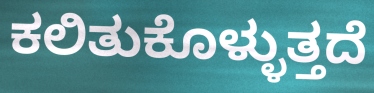
ಕಲಿತುಕೊಳ್ಳುತ್ತದೆ